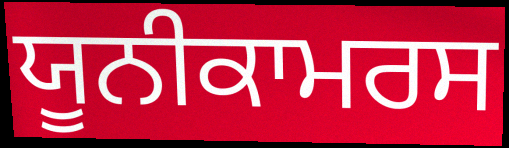
ਯੂਨੀਕਾਮਰਸ